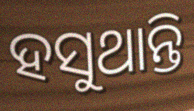
ହସୁଥାନ୍ତି